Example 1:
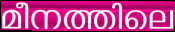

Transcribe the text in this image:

മീനത്തിലെ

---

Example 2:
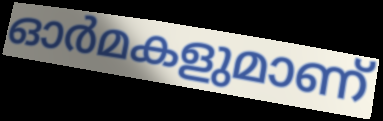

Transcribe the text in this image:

ഓർമകളുമാണ്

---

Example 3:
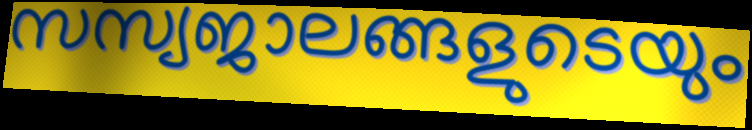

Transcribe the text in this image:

സസ്യജാലങ്ങളുടെയും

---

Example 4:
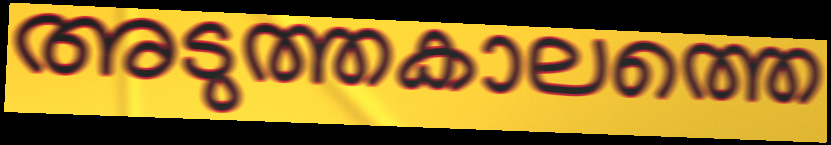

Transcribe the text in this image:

അടുത്തകാലത്തെ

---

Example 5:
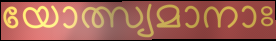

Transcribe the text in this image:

യോത്സ്യമാനാഃ